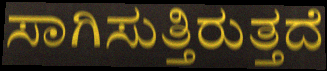
ಸಾಗಿಸುತ್ತಿರುತ್ತದೆ